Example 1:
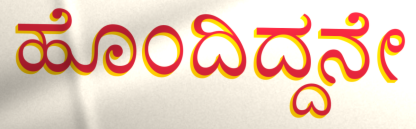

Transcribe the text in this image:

ಹೊಂದಿದ್ದನೇ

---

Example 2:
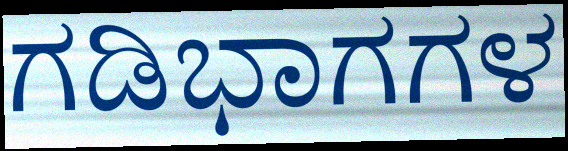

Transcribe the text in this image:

ಗಡಿಭಾಗಗಳ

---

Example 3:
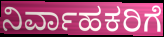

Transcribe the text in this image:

ನಿರ್ವಾಹಕರಿಗೆ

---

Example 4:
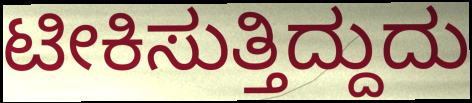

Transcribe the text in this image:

ಟೀಕಿಸುತ್ತಿದ್ದುದು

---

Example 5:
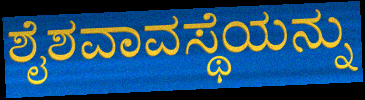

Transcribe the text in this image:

ಶೈಶವಾವಸ್ಥೆಯನ್ನು